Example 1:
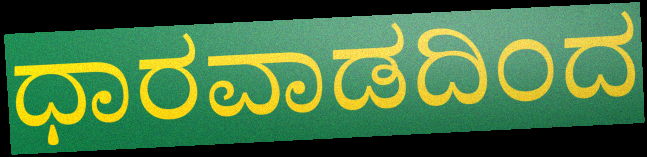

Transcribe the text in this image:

ಧಾರವಾಡದಿಂದ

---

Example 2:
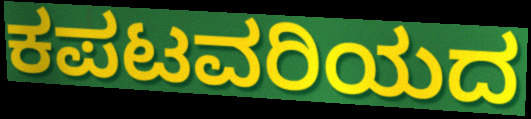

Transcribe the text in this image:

ಕಪಟವರಿಯದ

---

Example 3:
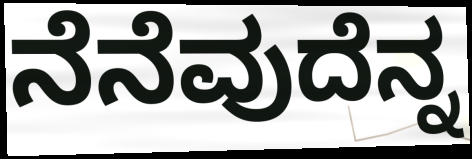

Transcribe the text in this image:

ನೆನೆವುದೆನ್ನ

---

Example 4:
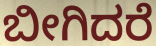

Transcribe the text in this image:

ಬೀಗಿದರೆ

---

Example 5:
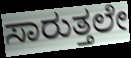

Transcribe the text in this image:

ಸಾರುತ್ತಲೇ